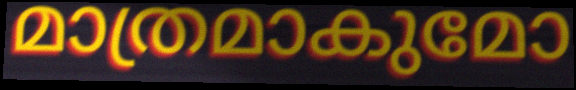
മാത്രമാകുമോ